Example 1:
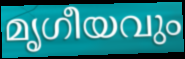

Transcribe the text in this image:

മൃഗീയവും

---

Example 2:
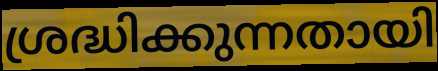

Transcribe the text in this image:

ശ്രദ്ധിക്കുന്നതായി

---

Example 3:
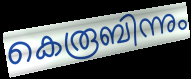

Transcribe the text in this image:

കെരൂബിന്നും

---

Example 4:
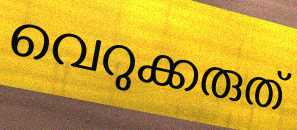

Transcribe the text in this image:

വെറുക്കരുത്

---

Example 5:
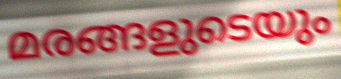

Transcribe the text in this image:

മരങ്ങളുടെയും